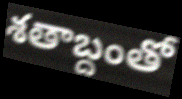
శతాబ్దంతో